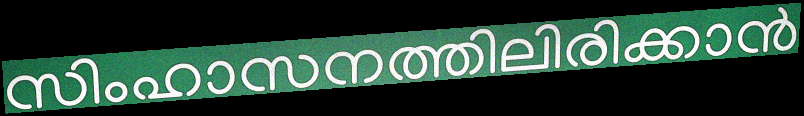
സിംഹാസനത്തിലിരിക്കാൻ